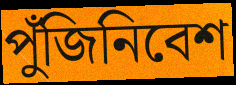
পুঁজিনিবেশ